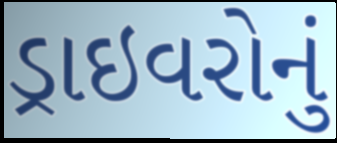
ડ્રાઇવરોનું